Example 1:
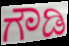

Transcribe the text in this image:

ಗೌಡಿ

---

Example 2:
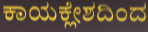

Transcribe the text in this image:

ಕಾಯಕ್ಲೇಶದಿಂದ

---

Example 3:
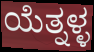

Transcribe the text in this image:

ಯೆತ್ನಳ್ಳ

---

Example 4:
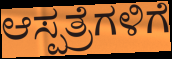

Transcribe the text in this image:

ಆಸ್ಪತ್ರೆಗಳಿಗೆ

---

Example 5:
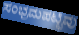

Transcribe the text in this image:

ಸಂಭ್ರಮಪಟ್ಟೆವು